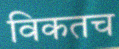
विकतच